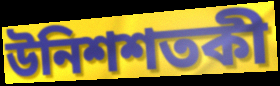
উনিশশতকী